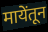
मायेंतून